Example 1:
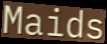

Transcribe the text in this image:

Maids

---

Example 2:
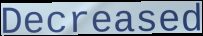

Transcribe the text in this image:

Decreased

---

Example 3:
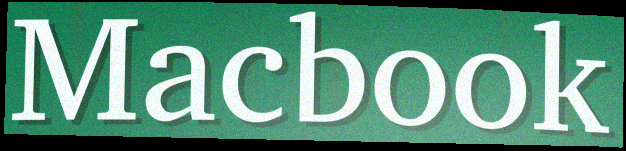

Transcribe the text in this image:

Macbook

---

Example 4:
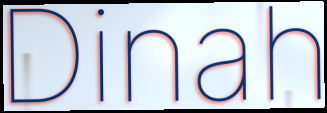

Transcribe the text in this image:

Dinah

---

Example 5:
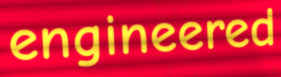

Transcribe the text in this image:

engineered